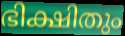
ഭിക്ഷിതും